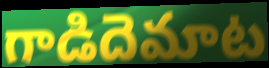
గాడిదెమాట